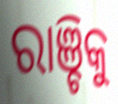
ରାଞ୍ଚିକୁ